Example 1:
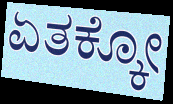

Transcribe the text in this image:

ಏತಕ್ಕೋ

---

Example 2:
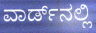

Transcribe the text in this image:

ವಾರ್ಡ್‌ನಲ್ಲಿ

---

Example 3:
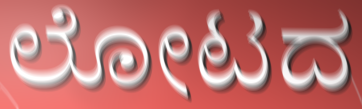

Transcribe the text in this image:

ಲೋಟದ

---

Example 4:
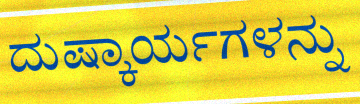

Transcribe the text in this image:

ದುಷ್ಕಾರ್ಯಗಳನ್ನು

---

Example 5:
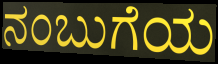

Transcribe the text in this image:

ನಂಬುಗೆಯ